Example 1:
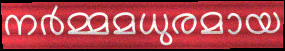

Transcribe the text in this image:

നർമ്മമധുരമായ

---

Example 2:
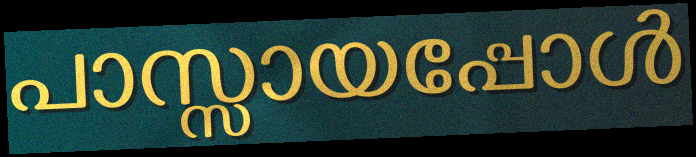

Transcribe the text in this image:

പാസ്സായപ്പോൾ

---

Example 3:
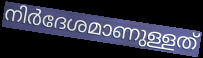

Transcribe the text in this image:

നിർദേശമാണുള്ളത്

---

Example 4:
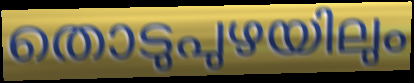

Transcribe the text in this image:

തൊടുപുഴയിലും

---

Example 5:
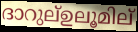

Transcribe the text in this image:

ദാറുല്ഉലൂമില്